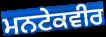
ਮਨਟੇਕਵੀਰ